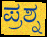
ಪ್ರಶ್ನ